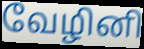
வேழினி